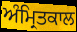
ਅੰਮ੍ਰਿਤਕਾਲ